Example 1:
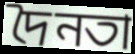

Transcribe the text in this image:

দৈনতা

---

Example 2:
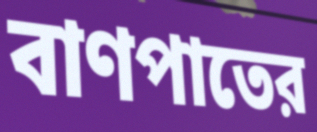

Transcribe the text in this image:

বাণপাতের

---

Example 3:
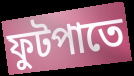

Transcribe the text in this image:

ফুটপাতে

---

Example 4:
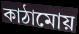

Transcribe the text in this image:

কাঠামোয়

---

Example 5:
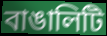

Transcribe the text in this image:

বাঙালিটি